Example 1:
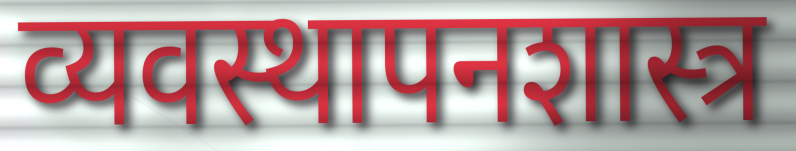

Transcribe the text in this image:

व्यवस्थापनशास्त्र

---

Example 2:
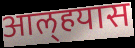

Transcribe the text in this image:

आल्हयास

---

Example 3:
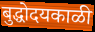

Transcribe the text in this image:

बुद्धोदयकाळी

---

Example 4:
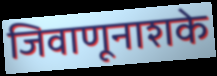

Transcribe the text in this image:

जिवाणूनाशके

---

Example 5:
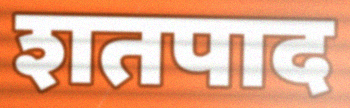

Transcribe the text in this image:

शतपाद